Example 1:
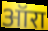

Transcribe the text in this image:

ऑरा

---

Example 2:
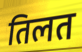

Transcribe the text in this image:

तिलत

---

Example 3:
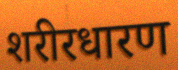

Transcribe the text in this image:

शरीरधारण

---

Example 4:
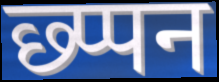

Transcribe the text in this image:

छ्प्पन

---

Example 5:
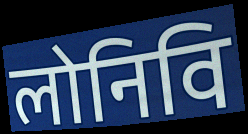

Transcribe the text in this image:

लोनिवि